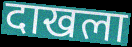
दाखला